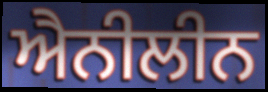
ਐਨੀਲੀਨ